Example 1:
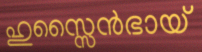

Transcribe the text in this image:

ഹുസ്സൈൻഭായ്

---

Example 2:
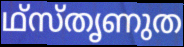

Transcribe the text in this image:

ഥ്സ്തൃണുത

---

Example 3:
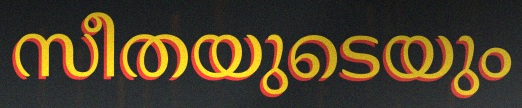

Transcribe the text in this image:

സീതയുടെയും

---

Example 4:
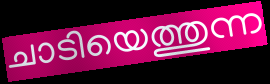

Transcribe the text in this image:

ചാടിയെത്തുന്ന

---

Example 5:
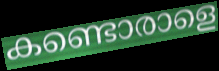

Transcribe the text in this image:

കണ്ടൊരാളെ